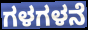
ಗಳಗಳನೆ